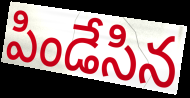
పిండేసిన